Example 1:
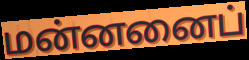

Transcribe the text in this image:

மன்னனைப்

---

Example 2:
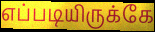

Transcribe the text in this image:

எப்படியிருக்கே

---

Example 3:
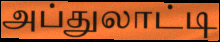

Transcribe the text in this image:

அப்துலாட்டி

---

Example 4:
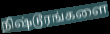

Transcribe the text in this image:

நிஷ்டூரங்களை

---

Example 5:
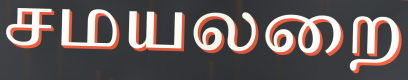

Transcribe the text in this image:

சமயலறை